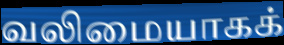
வலிமையாகக்